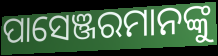
ପାସେଞ୍ଜରମାନଙ୍କୁ